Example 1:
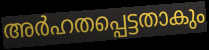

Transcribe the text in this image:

അർഹതപ്പെട്ടതാകും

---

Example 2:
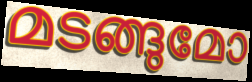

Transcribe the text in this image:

മടങ്ങുമോ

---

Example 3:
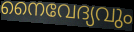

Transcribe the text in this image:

നൈവേദ്യവും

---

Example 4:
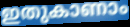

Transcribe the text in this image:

ഇതുകാണാം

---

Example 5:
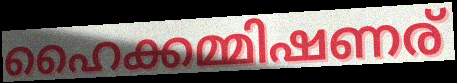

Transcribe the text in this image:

ഹൈക്കമ്മിഷണര്